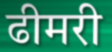
ढीमरी